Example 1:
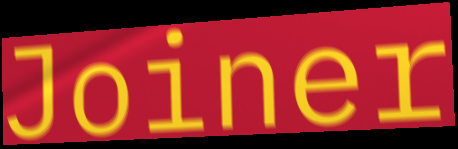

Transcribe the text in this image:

Joiner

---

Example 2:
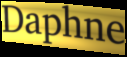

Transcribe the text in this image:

Daphne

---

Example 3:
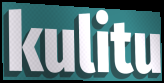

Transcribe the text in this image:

kulitu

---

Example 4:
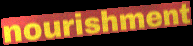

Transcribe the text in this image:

nourishment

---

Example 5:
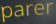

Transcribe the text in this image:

parer